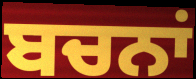
ਬਚਨਾਂ